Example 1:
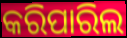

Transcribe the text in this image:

କରିପାରିଲ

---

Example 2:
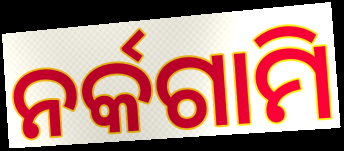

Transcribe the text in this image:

ନର୍କଗାମି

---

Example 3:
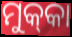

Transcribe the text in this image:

ମୁକ୍‌କା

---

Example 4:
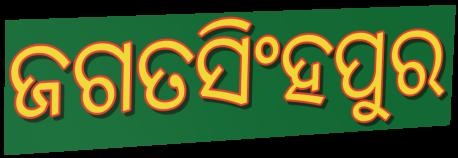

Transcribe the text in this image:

ଜଗତସିଂହପୁର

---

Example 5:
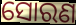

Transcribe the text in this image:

ସୋରଣ